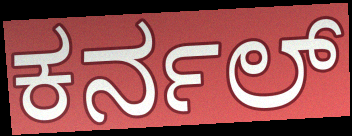
ಕರ್ನಲ್